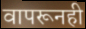
वापरूनही